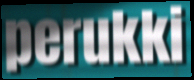
perukki